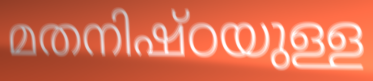
മതനിഷ്ഠയുള്ള